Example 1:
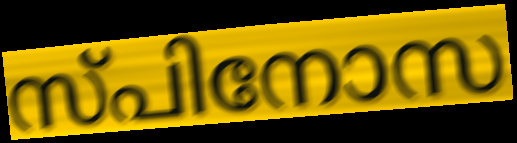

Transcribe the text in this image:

സ്പിനോസ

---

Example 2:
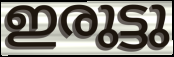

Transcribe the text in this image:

ഇരുട്ടു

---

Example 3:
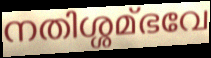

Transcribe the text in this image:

നതിശ്ശമ്ഭവേ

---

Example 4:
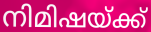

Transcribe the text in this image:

നിമിഷയ്ക്ക്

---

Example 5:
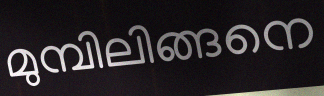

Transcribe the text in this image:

മുമ്പിലിങ്ങനെ